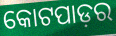
କୋଟପାଡ଼ର